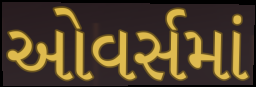
ઓવર્સમાં